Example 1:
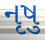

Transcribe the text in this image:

નૃષુ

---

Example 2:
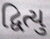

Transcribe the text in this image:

દ્વિત્યુ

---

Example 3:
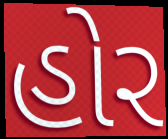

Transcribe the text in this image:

હોર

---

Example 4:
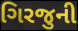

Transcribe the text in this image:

ગિરજુની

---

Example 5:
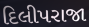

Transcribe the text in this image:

દિલીપરાજા